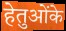
हेतुओंके